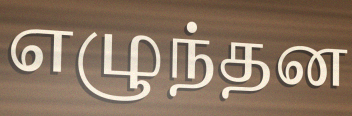
எழுந்தன